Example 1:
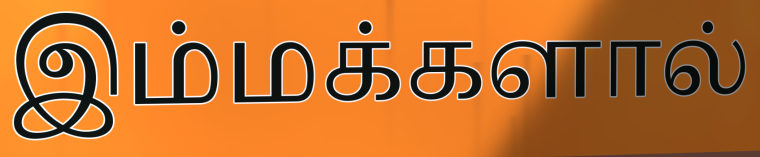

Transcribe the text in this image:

இம்மக்களால்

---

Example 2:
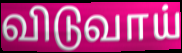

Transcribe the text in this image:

விடுவாய்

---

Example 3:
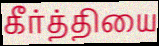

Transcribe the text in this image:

கீர்த்தியை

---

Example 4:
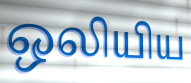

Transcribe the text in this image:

ஒலியிய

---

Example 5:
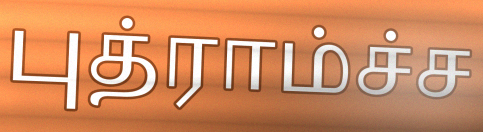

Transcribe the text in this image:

புத்ராம்ச்ச